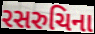
રસરુચિના